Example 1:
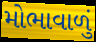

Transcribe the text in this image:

મોભાવાળું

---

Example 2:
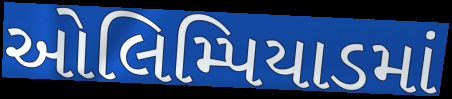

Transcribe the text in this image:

ઓલિમ્પિયાડમાં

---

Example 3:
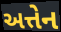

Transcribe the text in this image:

અત્તેન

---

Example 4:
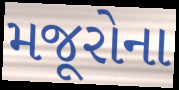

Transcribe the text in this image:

મજૂરોના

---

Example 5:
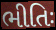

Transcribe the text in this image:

ભીતિઃ